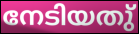
നേടിയതു്